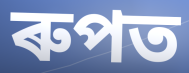
ৰুপত